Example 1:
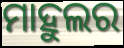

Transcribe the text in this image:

ମାହୁଲର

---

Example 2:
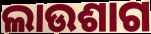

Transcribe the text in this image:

ଲାଉଶାଗ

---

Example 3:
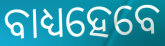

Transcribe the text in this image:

ବାଧ୍ୟହେବେ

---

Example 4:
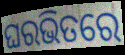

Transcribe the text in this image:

ଘରଭିତରେ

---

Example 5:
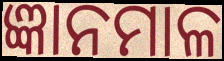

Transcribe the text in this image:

ଜ୍ଞାନମାଳ